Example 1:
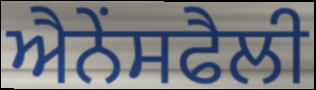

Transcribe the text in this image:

ਐਨੇਂਸਫੈਲੀ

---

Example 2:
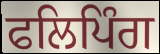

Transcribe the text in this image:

ਫਲਿਪਿੰਗ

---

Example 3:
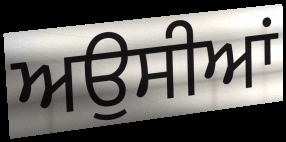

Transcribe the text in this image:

ਅਉਸੀਆਂ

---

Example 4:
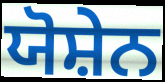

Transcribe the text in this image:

ਯੋਸ਼ੇਨ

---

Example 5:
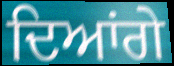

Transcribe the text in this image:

ਦਿਆਂਗੇ